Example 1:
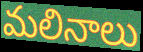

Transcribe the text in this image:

మలినాలు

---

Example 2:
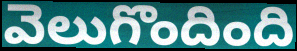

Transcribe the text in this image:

వెలుగొందింది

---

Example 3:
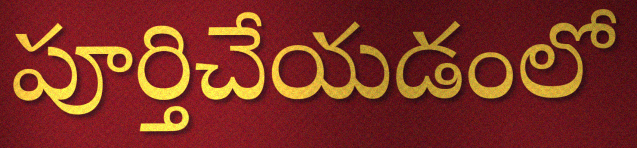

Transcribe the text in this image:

పూర్తిచేయడంలో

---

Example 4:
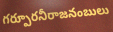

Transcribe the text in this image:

గర్పూరనీరాజనంబులు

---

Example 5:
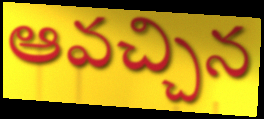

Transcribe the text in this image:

ఆవచ్చిన